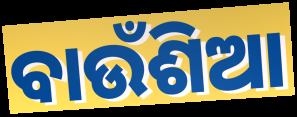
ବାଉଁଶିଆ